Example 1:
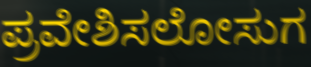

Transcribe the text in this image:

ಪ್ರವೇಶಿಸಲೋಸುಗ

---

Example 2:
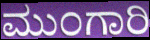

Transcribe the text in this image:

ಮುಂಗಾರಿ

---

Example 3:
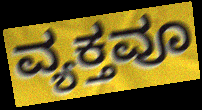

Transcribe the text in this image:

ವ್ಯಕ್ತವೂ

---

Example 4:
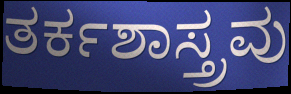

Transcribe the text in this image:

ತರ್ಕಶಾಸ್ತ್ರವು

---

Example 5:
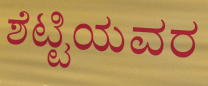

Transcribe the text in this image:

ಶೆಟ್ಟಿಯವರ